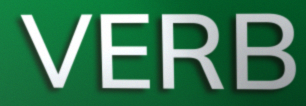
VERB